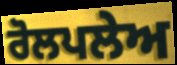
ਰੋਲਪਲੇਅ